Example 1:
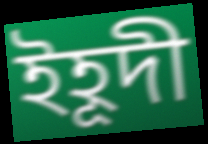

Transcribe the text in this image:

ইহূদী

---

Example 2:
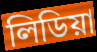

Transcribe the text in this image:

লিডিয়া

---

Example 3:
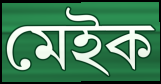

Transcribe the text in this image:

মেইক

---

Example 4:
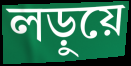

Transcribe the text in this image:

লড়ুয়ে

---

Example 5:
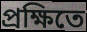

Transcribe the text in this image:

প্রক্ষিতে